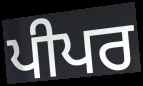
ਪੀਪਰ